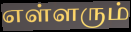
எள்ளரும்